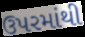
ઉપરમાંથી